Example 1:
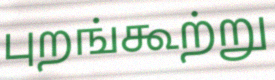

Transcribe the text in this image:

புறங்கூற்று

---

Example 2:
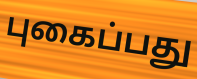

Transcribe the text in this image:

புகைப்பது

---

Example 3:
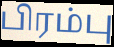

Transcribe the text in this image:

பிரம்பு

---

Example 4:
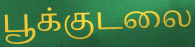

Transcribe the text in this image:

பூக்குடலை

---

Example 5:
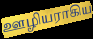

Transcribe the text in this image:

ஊழியராகிய